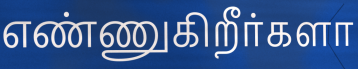
எண்ணுகிறீர்களா